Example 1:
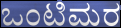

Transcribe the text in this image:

ಒಂಟಿಮರ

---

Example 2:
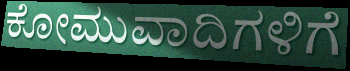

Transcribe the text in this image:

ಕೋಮುವಾದಿಗಳಿಗೆ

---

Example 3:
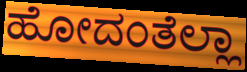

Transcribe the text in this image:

ಹೋದಂತೆಲ್ಲಾ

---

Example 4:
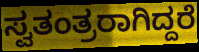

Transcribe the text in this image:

ಸ್ವತಂತ್ರರಾಗಿದ್ದರೆ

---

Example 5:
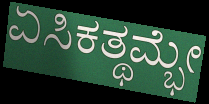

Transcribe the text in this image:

ಏಸಿಕತ್ಥಮ್ಭೇ